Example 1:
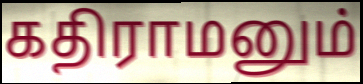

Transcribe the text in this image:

கதிராமனும்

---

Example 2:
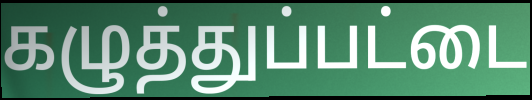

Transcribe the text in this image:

கழுத்துப்பட்டை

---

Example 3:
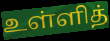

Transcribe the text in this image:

உள்ளித்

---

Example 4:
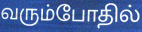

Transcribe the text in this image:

வரும்போதில்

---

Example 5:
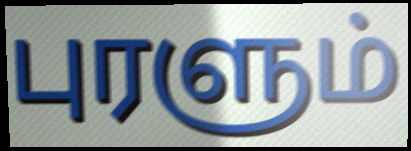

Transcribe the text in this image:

புரளும்